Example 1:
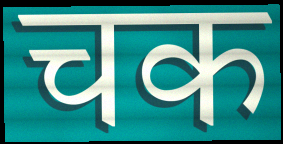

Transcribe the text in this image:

चक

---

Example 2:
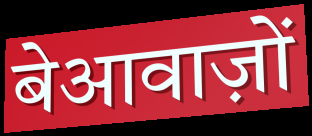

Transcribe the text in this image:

बेआवाज़ों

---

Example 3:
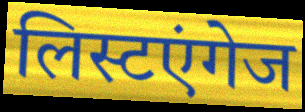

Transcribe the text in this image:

लिस्टएंगेज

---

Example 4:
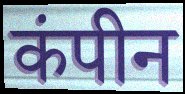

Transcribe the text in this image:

कंपीन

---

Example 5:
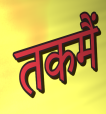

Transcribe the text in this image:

तकमैं